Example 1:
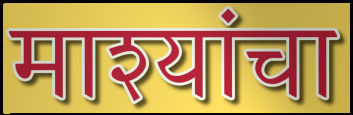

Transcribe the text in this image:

माश्यांचा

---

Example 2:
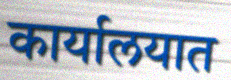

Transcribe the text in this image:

कार्यालयात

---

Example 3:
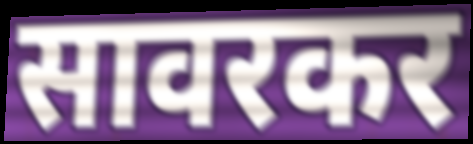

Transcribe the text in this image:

सावरकर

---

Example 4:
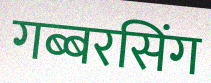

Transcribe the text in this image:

गब्बरसिंग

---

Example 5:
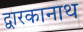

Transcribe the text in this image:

द्वारकानाथ